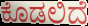
ಕೊಡಲಿದೆ